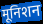
मूनिशन